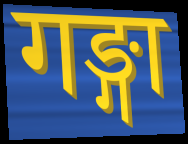
गङ्गा